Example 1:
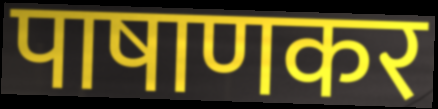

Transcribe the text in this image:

पाषाणकर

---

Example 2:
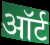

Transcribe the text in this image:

ऑर्ट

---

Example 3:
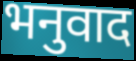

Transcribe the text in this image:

भनुवाद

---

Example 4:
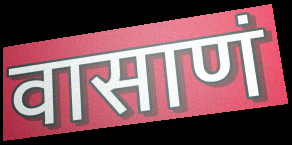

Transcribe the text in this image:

वासाणं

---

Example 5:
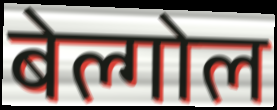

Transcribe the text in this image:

बेल्गोल